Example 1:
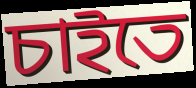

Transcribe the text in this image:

চাইতে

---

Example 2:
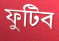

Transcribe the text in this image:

ফুটিব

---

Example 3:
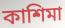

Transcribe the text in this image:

কাশিমা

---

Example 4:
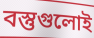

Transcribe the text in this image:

বস্তুগুলোই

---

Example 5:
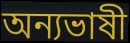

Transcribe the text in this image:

অন্যভাষী